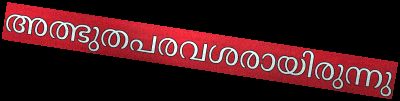
അത്ഭുതപരവശരായിരുന്നു